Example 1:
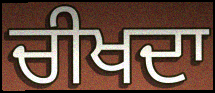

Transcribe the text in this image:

ਚੀਖਦਾ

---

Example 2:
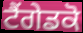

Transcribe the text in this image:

ਟੈਂਗੇਡਕੋ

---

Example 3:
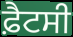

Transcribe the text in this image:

ਫ਼ੈਟਸੀ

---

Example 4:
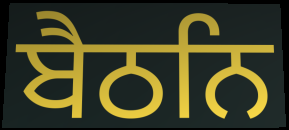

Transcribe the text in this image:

ਬੈਠਨਿ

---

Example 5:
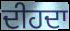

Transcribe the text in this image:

ਦੀਹਦਾ